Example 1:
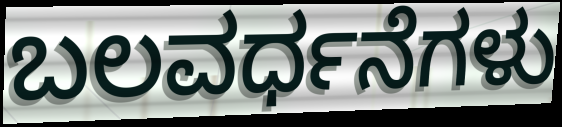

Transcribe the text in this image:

ಬಲವರ್ಧನೆಗಳು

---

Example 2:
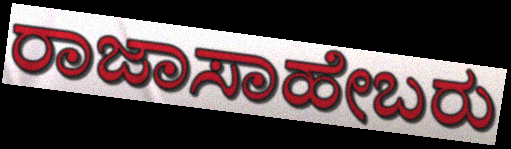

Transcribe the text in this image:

ರಾಜಾಸಾಹೇಬರು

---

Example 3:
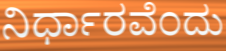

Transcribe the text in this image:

ನಿರ್ಧಾರವೆಂದು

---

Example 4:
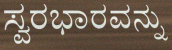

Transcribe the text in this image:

ಸ್ವರಭಾರವನ್ನು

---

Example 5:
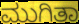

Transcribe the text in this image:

ಮುಗಿತಾ